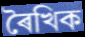
ৰৈখিক